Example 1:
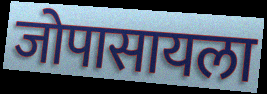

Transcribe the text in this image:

जोपासायला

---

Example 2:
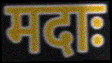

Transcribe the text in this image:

मदाः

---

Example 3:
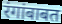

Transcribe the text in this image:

रंगांबाबत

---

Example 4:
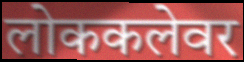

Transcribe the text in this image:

लोककलेवर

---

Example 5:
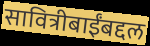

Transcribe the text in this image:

सावित्रीबाईंबद्दल